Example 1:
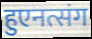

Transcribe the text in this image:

हुएनत्संग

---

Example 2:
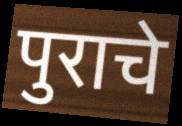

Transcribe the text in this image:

पुराचे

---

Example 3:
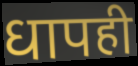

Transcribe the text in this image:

धापही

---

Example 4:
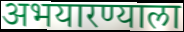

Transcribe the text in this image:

अभयारण्याला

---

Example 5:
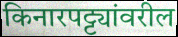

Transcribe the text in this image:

किनारपट्ट्यांवरील